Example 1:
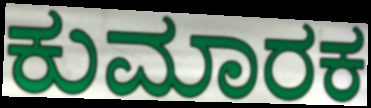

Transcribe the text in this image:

ಕುಮಾರಕ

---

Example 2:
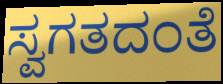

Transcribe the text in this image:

ಸ್ವಗತದಂತೆ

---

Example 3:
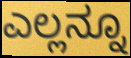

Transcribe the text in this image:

ಎಲ್ಲನ್ನೂ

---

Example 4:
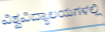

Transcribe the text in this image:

ವಿಶ್ವವಿದ್ಯಾಲಯಗಳಲ್ಲಿ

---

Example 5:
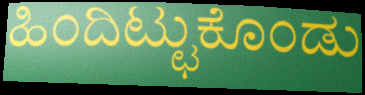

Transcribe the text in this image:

ಹಿಂದಿಟ್ಟುಕೊಂಡು